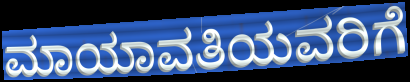
ಮಾಯಾವತಿಯವರಿಗೆ